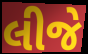
લીજે